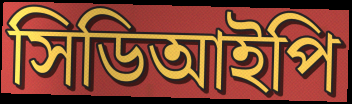
সিডিআইপি